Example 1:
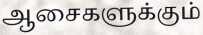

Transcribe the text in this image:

ஆசைகளுக்கும்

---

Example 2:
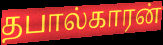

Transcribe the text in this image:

தபால்காரன்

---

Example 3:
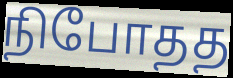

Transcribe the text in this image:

நிபோதத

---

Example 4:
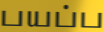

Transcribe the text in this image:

பயப்ப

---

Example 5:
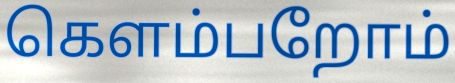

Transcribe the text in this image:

கெளம்பறோம்